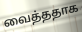
வைத்ததாக